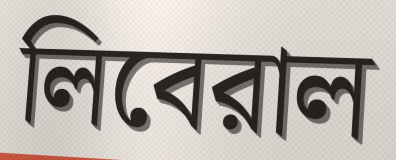
লিবেরাল